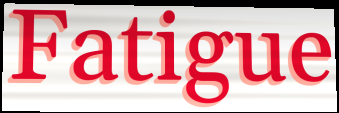
Fatigue